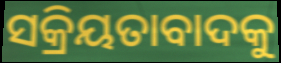
ସକ୍ରିୟତାବାଦକୁ